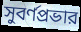
সুবর্ণপ্রভার